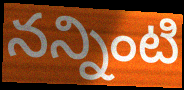
నన్నింటి